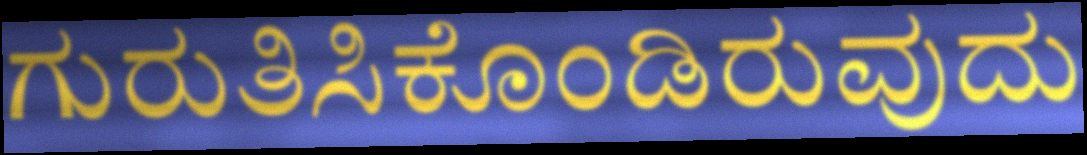
ಗುರುತಿಸಿಕೊಂಡಿರುವುದು